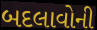
બદલાવોની